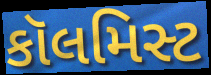
કૉલમિસ્ટ